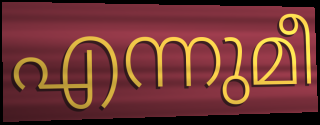
എന്നുമീ